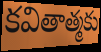
కవితాత్మకు